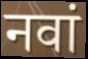
नवां